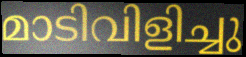
മാടിവിളിച്ചു